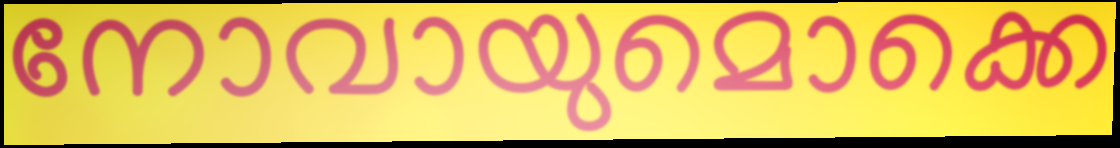
നോവായുമൊക്കെ